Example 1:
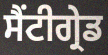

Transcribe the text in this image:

ਸੈਂਟੀਗ੍ਰੇਡ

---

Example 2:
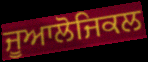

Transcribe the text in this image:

ਜੂਆਲੋਜਿਕਲ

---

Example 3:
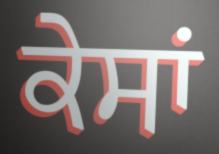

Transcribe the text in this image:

ਕੇਸਾਂ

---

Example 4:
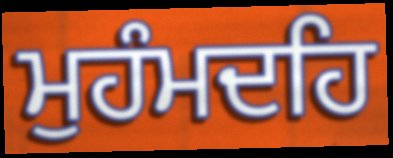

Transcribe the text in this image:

ਮੁਹੰਮਦਹਿ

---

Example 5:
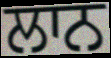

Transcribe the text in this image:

ਲਾਨ